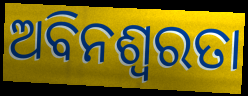
ଅବିନଶ୍ୱରତା